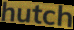
hutch